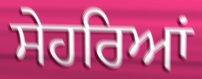
ਸੇਹਰਿਆਂ